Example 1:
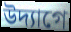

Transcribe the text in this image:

উদ্যাগে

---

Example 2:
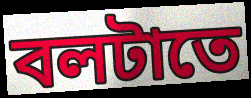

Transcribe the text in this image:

বলটাতে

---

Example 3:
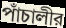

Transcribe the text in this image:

পাঁচালীর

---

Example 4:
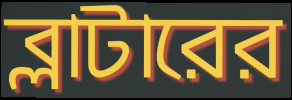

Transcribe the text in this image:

ব্লাটারের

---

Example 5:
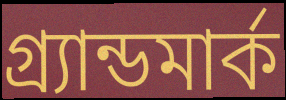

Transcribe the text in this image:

গ্র্যান্ডমার্ক